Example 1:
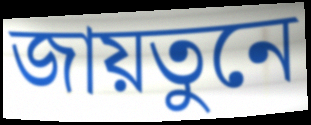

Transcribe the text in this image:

জায়তুনে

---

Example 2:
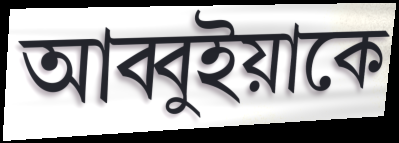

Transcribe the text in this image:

আব্বুইয়াকে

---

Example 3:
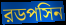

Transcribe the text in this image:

রডপসিন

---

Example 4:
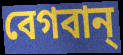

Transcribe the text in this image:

বেগবান্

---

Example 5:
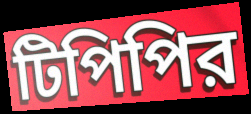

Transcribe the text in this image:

টিপিপির